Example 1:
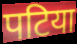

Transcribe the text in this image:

पटिया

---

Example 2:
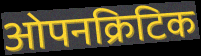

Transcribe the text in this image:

ओपनक्रिटिक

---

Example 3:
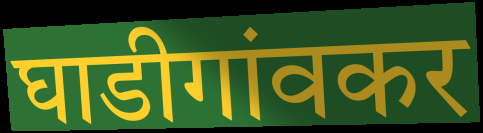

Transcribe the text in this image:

घाडीगांवकर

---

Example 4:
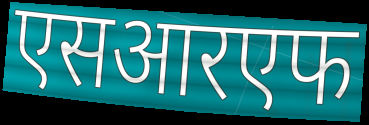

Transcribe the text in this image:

एसआरएफ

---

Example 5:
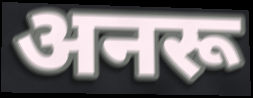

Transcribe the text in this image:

अनरू